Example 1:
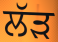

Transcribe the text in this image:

ਲੱੜ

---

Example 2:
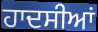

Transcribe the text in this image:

ਹਾਦਸੀਆਂ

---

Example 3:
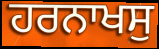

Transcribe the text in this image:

ਹਰਨਾਖਸੁ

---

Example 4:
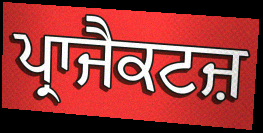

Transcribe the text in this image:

ਪ੍ਰਾਜੈਕਟਜ਼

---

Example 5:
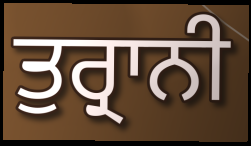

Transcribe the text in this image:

ਤੁਰ੍ਰਾਨੀ